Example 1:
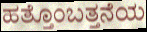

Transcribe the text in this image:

ಹತ್ತೊಂಬತ್ತನೆಯ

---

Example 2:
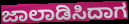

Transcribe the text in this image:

ಜಾಲಾಡಿಸಿದಾಗ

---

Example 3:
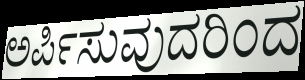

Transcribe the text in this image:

ಅರ್ಪಿಸುವುದರಿಂದ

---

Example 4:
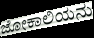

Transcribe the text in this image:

ಜೋಕಾಲಿಯನು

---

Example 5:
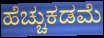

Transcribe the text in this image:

ಹೆಚ್ಚುಕಡಮೆ